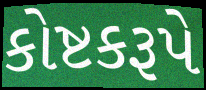
કોષ્ટકરૂપે